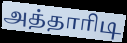
அத்தாரிடி